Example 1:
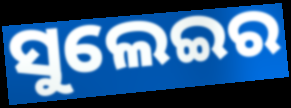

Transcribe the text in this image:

ସୁଲେଇର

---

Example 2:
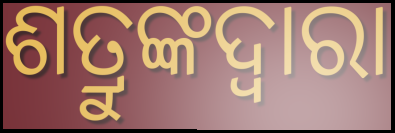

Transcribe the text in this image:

ଶତ୍ରୁଙ୍କଦ୍ୱାରା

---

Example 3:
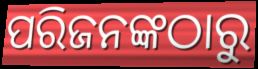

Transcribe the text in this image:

ପରିଜନଙ୍କଠାରୁ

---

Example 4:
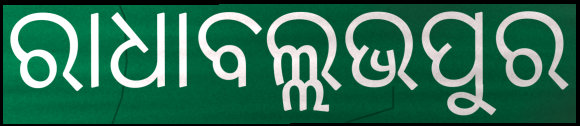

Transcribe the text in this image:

ରାଧାବଲ୍ଲଭପୁର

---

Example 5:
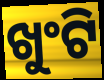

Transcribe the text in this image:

ଖୁଂଟି